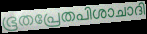
ഭൂതപ്രേതപിശാചാദി